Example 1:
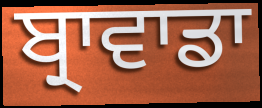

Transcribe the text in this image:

ਬ੍ਰਾਵਾਡਾ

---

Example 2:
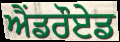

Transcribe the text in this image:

ਐਂਡਰੌਏਡ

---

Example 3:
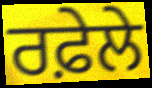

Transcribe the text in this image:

ਰਫ਼ੇਲੇ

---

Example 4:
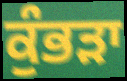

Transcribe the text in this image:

ਕੁੰਭੜਾ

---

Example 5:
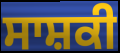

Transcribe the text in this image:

ਸਾਸ਼ਕੀ